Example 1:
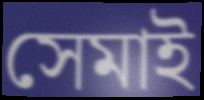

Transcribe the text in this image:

সেমাই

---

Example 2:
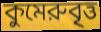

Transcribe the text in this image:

কুমেরুবৃত্ত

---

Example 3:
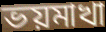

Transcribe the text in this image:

ভয়মাখা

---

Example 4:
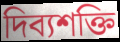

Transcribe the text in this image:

দিব্যশক্তি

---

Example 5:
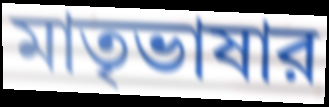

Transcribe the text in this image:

মাতৃভাষার